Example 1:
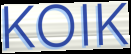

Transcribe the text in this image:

KOIK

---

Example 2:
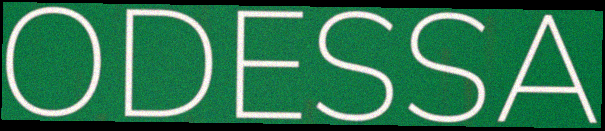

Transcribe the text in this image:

ODESSA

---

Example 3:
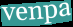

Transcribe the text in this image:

venpa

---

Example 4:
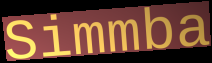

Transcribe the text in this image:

Simmba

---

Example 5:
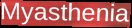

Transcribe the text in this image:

Myasthenia